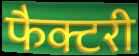
फैक्टरी